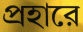
প্রহারে